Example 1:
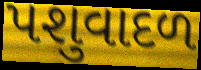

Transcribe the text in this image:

પશુવાદળ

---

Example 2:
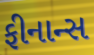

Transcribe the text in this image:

ફીનાન્સ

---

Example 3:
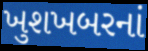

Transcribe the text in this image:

ખુશખબરનાં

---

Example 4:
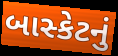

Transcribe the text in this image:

બાસ્કેટનું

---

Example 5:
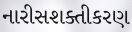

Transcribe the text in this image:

નારીસશક્તીકરણ